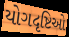
યોગદૃષ્ટિઓ